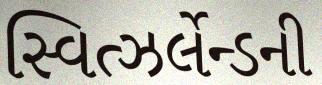
સ્વિત્ઝર્લેન્ડની